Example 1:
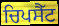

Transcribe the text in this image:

ਚਿਪਸੈੱਟ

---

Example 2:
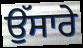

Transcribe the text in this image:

ਉੱਸਾਰੇ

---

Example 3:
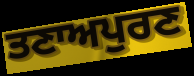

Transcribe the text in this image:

ਤਣਾਅਪੁਰਣ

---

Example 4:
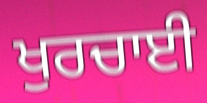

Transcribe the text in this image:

ਖੁਰਚਾਈ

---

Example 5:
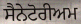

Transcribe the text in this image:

ਸੈਨੇਟੋਰੀਅਮ